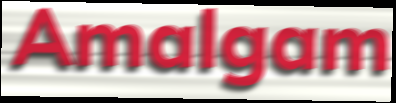
Amalgam